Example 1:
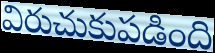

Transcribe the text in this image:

విరుచుకుపడింది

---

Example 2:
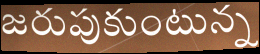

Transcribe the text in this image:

జరుపుకుంటున్న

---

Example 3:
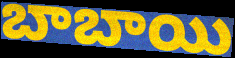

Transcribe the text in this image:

బాబాయి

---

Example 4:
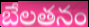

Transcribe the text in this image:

బేలతనం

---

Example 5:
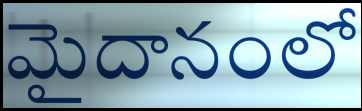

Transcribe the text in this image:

మైదానంలో